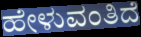
ಹೇಳುವಂತಿದೆ